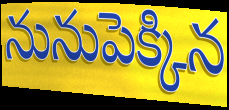
నునుపెక్కిన